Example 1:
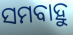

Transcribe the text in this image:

ସମବାହୁ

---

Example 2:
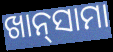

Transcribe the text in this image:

ଖାନ୍‌ସାମା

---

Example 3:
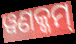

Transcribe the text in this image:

ୱଣକ୍କମ୍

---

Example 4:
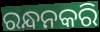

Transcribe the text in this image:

ରନ୍ଧନକରି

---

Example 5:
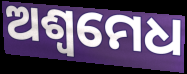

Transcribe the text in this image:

ଅଶ୍ୱମେଧ